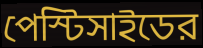
পেস্টিসাইডের